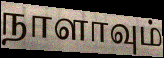
நாளாவும்